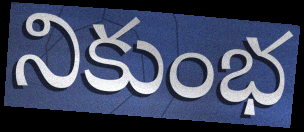
నికుంభ